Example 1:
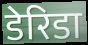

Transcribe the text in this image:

डेरिडा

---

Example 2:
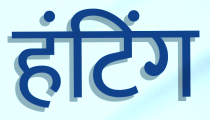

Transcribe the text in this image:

हंटिंग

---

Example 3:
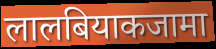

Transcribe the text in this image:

लालबियाकजामा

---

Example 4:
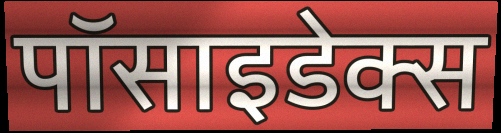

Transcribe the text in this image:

पॉसाइडेक्स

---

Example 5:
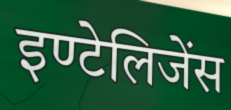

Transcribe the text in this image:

इण्टेलिजेंस